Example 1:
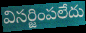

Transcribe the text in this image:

విసర్జింపలేదు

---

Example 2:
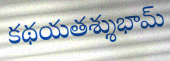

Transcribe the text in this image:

కథయతశ్శుభామ్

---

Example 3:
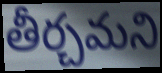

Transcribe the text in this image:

తీర్చమని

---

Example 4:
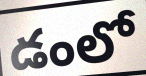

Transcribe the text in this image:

డంలో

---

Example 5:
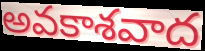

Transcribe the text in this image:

అవకాశవాద